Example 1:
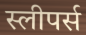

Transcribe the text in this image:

स्लीपर्स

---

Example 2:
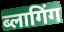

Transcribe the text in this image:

ब्लागिंग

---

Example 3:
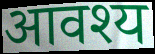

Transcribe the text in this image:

आवश्य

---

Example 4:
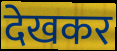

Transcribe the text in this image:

देखकर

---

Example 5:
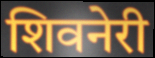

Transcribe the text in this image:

शिवनेरी